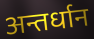
अन्तर्धान